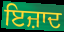
ਇਜ਼ਾਦ